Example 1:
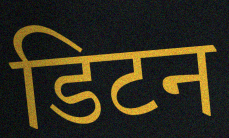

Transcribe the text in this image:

डिटन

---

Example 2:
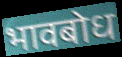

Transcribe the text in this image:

भावबोध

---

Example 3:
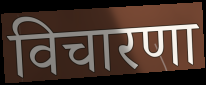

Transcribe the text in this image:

विचारणा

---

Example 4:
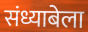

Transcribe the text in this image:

संध्याबेला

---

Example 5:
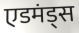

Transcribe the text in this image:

एडमंड्स